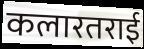
कलारतराई